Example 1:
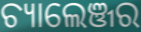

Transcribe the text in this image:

ଚ୍ୟାଲେଞ୍ଜର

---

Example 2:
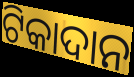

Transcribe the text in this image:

ଟିକାଦାନ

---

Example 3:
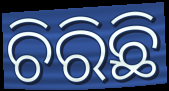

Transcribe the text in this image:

ଚିରିଛି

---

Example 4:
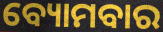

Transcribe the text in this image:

ବ୍ୟୋମବାର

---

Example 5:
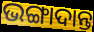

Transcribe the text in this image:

ଭଙ୍ଗାଦାନ୍ତ